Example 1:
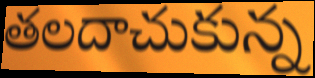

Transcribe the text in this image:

తలదాచుకున్న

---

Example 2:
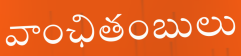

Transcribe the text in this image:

వాంఛితంబులు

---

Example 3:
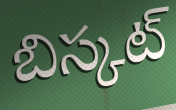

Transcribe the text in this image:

బిస్కట్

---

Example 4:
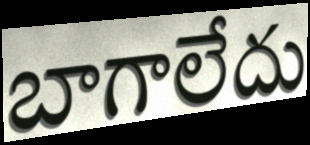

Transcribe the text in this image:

బాగాలేదు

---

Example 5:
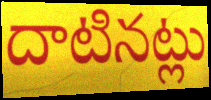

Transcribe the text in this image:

దాటినట్లు